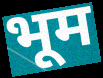
भूम